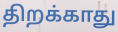
திறக்காது